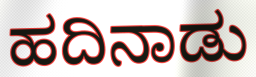
ಹದಿನಾಡು